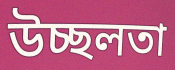
উচ্ছলতা